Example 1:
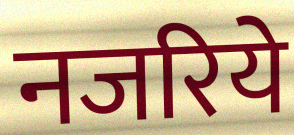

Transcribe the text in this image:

नजरिये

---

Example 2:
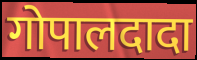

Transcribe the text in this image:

गोपालदादा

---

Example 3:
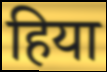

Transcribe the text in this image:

हिया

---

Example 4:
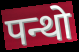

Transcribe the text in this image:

पन्थो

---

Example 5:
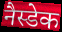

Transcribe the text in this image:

नैस्डेक